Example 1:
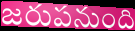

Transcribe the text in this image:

జరుపనుంది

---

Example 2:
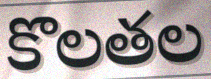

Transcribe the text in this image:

కొలతల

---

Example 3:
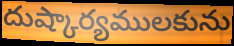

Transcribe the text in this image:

దుష్కార్యములకును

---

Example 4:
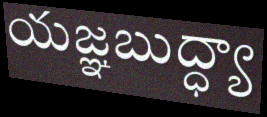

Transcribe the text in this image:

యజ్ఞబుద్ధ్యా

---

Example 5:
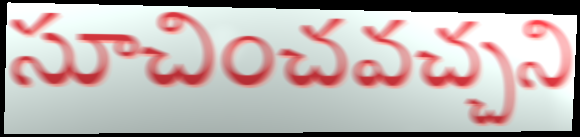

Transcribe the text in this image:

సూచించవచ్చని